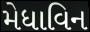
મેધાવિન